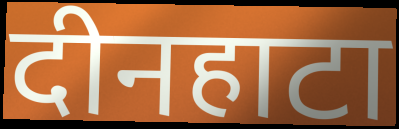
दीनहाटा